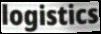
logistics